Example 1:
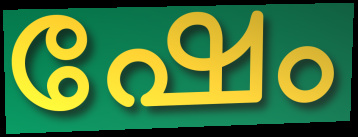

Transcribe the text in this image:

ഷേം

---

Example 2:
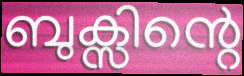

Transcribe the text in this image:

ബുക്സിന്റെ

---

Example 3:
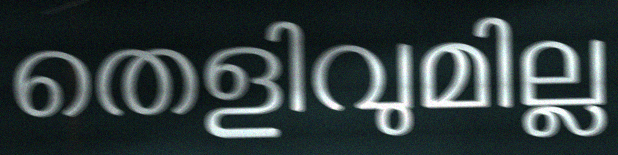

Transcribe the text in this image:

തെളിവുമില്ല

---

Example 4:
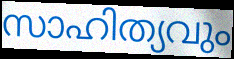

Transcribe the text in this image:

സാഹിത്യവും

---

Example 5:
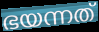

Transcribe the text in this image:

ഭയന്നത്